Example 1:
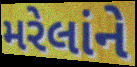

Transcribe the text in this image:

મરેલાંને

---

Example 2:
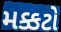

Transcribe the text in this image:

મક્કટો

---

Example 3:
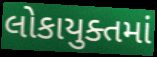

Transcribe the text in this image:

લોકાયુક્તમાં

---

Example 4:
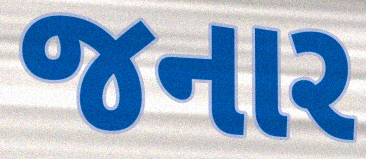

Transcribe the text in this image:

જનાર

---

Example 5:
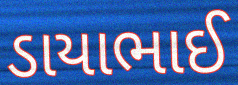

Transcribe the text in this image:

ડાયાભાઈ